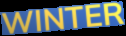
WINTER